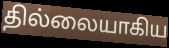
தில்லையாகிய